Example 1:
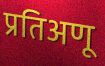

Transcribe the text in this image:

प्रतिअणू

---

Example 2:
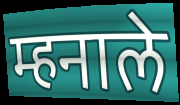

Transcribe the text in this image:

म्हनाले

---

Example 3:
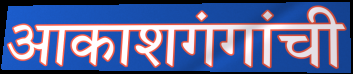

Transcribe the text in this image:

आकाशगंगांची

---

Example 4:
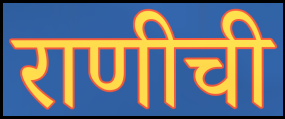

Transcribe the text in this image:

राणीची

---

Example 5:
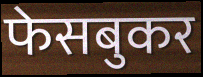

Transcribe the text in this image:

फेसबुकर